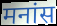
मनांस